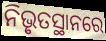
ନିଭୃତସ୍ଥାନରେ